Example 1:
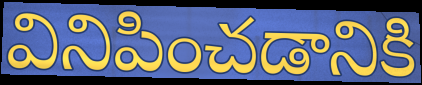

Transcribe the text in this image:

వినిపించడానికి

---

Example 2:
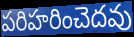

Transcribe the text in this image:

పరిహరించెదవు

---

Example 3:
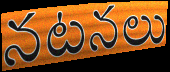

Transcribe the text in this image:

నటనలు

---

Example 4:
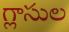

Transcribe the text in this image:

గ్లాసుల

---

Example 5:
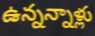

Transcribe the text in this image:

ఉన్నన్నాళ్లు